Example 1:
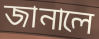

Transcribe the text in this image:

জানালে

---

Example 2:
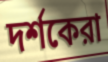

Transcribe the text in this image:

দর্শকেরা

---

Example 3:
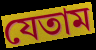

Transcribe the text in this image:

যেতাম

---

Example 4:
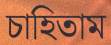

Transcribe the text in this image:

চাহিতাম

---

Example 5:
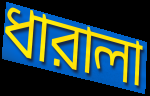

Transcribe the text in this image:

ধারালা